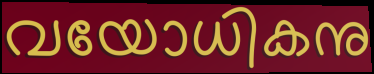
വയോധികനു